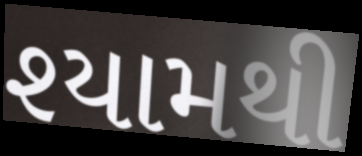
શ્યામથી